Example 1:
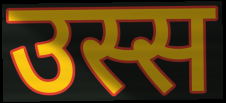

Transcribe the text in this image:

उस्स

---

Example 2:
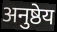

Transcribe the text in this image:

अनुष्ठेय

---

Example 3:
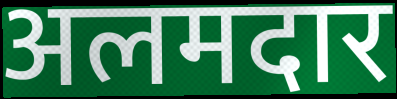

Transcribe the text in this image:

अलमदार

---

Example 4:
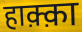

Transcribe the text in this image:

हाक़्क़ा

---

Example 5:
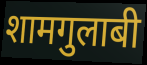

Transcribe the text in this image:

शामगुलाबी